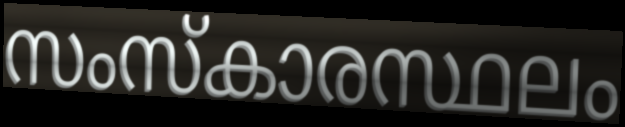
സംസ്കാരസ്ഥലം